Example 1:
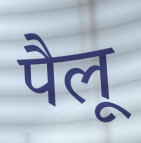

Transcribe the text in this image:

पैलू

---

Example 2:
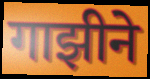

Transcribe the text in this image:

गाझीने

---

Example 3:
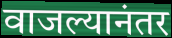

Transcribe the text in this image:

वाजल्यानंतर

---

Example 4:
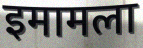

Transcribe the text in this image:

इमामला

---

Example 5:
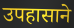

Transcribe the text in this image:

उपहासाने